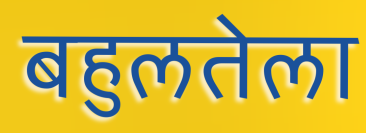
बहुलतेला